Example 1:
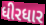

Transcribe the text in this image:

ધીરધાર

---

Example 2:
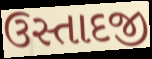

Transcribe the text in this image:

ઉસ્તાદજી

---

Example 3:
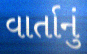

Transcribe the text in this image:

વાર્તાનું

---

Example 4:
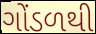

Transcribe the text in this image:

ગોંડળથી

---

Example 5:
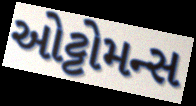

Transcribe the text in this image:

ઓટ્ટોમન્સ